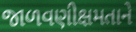
જાળવણીક્ષમતાને